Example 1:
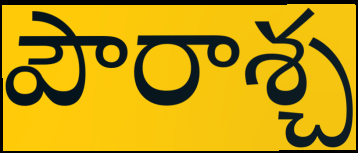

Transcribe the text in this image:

పౌరాశ్చ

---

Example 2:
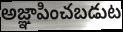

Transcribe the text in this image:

అజ్ఞాపించబడుట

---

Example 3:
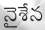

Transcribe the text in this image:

నైశేన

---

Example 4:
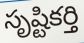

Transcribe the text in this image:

సృష్టికర్తి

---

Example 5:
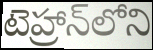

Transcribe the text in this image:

టెహ్రాన్‌లోని